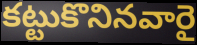
కట్టుకొనినవారై